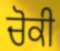
ਚੋਕੀ